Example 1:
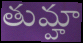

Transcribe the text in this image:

తుమ్హా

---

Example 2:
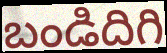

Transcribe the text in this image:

బండిదిగి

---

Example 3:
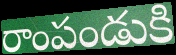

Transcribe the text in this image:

రాంపండుకి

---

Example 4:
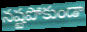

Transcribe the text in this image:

నష్టపోకుండా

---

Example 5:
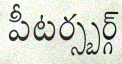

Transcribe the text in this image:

పీటర్స్బర్గ్